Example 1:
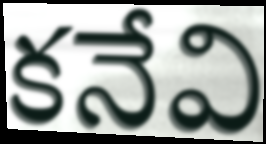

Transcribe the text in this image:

కనేవి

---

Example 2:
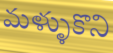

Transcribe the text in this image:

మళ్ళుకొని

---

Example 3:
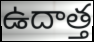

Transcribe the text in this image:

ఉదాత్త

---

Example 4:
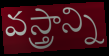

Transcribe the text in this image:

వస్త్రాన్ని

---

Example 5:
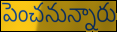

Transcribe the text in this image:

పెంచనున్నారు